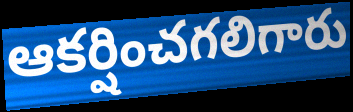
ఆకర్షించగలిగారు